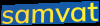
samvat